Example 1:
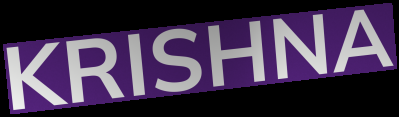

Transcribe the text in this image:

KRISHNA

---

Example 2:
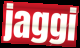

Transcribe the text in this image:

jaggi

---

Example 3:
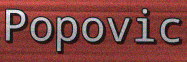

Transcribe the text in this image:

Popovic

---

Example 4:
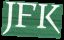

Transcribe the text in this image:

JFK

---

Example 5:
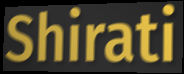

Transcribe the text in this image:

Shirati